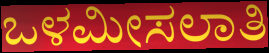
ಒಳಮೀಸಲಾತಿ